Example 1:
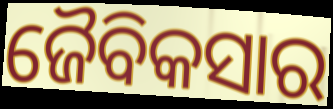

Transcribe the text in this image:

ଜୈବିକସାର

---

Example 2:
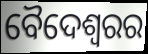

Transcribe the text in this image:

ବୈଦେଶ୍ୱରର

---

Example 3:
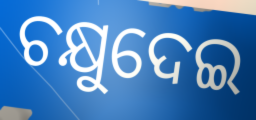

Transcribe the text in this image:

ଚକ୍ଷୁଦେଇ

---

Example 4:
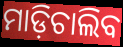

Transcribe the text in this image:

ମାଡ଼ିଚାଲିବ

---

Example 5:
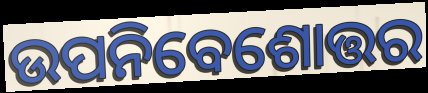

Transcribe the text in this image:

ଉପନିବେଶୋତ୍ତର